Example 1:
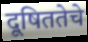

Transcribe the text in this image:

दूषिततेचे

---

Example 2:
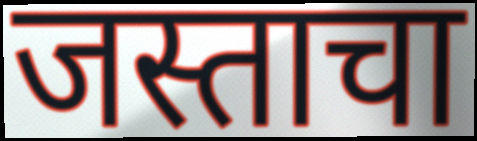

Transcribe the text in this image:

जस्ताचा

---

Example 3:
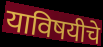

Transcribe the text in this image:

याविषयीचे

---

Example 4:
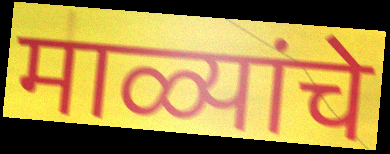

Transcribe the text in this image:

माळ्यांचे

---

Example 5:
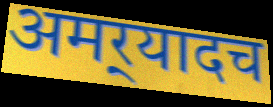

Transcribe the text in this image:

अमर्यादच